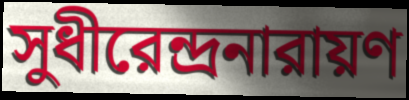
সুধীরেন্দ্রনারায়ণ